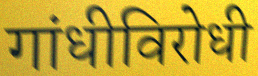
गांधीविरोधी